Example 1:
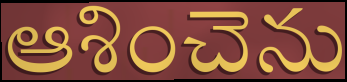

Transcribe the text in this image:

ఆశించెను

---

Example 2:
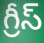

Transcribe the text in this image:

గ్రీస్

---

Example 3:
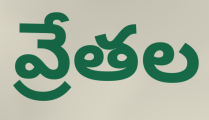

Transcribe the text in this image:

వ్రేతల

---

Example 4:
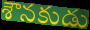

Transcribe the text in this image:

శౌనకుడు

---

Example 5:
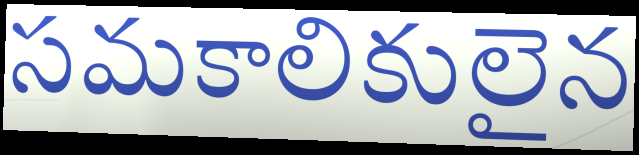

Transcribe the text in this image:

సమకాలికులైన